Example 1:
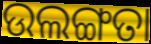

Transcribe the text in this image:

ଉଲଙ୍ଗତା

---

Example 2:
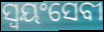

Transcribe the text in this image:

ସ୍ୱୟଂସେବୀ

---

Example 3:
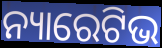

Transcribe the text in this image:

ନ୍ୟାରେଟିଭ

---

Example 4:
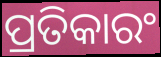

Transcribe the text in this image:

ପ୍ରତିକାରଂ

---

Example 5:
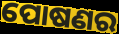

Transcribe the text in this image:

ପୋଷଣର